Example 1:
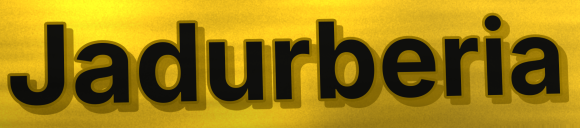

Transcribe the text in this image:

Jadurberia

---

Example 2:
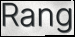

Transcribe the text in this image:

Rang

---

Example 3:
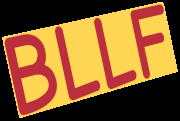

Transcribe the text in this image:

BLLF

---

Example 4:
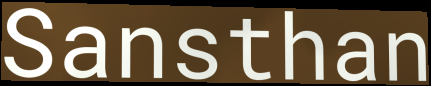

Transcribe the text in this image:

Sansthan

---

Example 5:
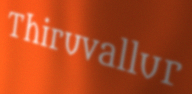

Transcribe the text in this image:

Thiruvallur